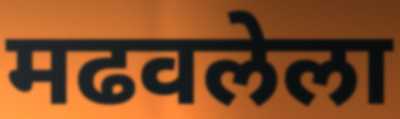
मढवलेला